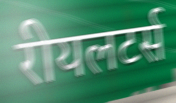
रीयलटर्स